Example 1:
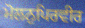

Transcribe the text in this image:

ਮੋਲਨੁਪਿਰਵੀਰ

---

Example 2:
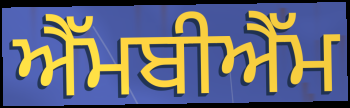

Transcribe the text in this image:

ਐੱਮਬੀਐੱਮ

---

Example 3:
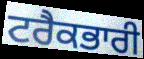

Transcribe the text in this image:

ਟਰੈਕਭਾਰੀ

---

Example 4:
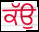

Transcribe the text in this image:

ਕੱਉ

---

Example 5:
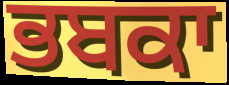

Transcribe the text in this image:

ਭਬਕਾ